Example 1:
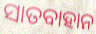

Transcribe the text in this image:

ସାତବାହାନ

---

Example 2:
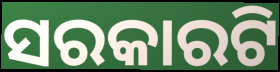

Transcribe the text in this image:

ସରକାରଟି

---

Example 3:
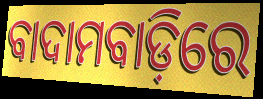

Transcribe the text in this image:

ବାଦାମବାଡ଼ିରେ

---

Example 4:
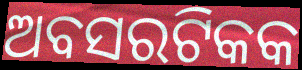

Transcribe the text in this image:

ଅବସରଟିକକ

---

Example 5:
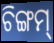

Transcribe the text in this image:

ଚିଙ୍ଗମ୍